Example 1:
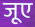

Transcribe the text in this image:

जूए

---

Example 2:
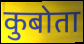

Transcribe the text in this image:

कुबोता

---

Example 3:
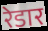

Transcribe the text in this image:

रेडार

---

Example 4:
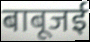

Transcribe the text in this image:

बाबूजई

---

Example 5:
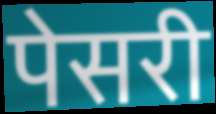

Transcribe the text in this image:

पेसरी